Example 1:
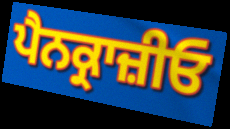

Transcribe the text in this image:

ਪੈਨਕ੍ਰਾਜ਼ੀਓ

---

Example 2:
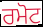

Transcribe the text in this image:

ਰਮੋਟ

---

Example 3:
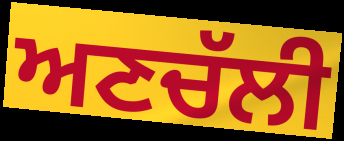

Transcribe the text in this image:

ਅਣਚੱਲੀ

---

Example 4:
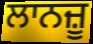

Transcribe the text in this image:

ਲਾਨਜ਼ੂ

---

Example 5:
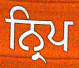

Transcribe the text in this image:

ਨ੍ਰਿਪ